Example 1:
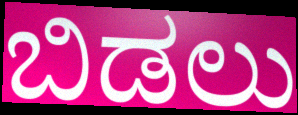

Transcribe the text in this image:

ಬಿಡಲು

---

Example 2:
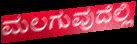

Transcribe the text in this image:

ಮಲಗುವುದೆಲ್ಲಿ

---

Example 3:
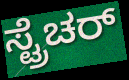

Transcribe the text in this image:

ಸ್ಟ್ರೆಚರ್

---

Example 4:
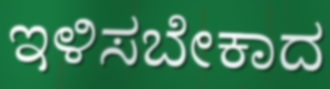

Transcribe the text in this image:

ಇಳಿಸಬೇಕಾದ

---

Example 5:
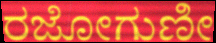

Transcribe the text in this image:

ರಜೋಗುಣೀ